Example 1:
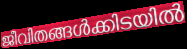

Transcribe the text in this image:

ജീവിതങ്ങൾക്കിടയിൽ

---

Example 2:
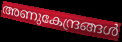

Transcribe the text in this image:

അണുകേന്ദ്രങ്ങൾ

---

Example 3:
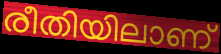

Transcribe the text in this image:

രീതിയിലാണ്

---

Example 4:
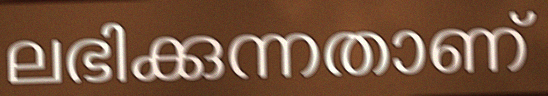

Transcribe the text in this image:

ലഭിക്കുന്നതാണ്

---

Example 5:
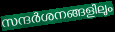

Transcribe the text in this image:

സന്ദർശനങ്ങളിലും